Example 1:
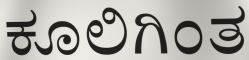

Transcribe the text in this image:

ಕೂಲಿಗಿಂತ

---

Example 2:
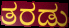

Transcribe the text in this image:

ತರಡು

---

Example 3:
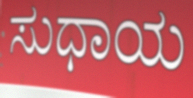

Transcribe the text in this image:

ಸುಧಾಯ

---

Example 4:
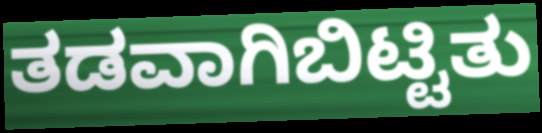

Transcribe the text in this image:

ತಡವಾಗಿಬಿಟ್ಟಿತು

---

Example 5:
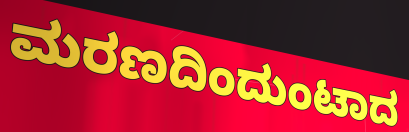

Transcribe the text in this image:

ಮರಣದಿಂದುಂಟಾದ